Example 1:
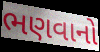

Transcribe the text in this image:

ભણવાનો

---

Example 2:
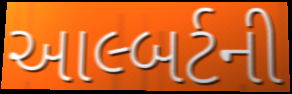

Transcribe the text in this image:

આલ્બર્ટની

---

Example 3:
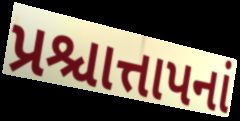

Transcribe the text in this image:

પ્રશ્ચાત્તાપનાં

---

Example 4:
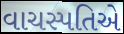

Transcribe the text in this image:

વાચસ્પતિએ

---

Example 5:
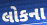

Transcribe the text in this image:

લોકના